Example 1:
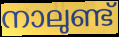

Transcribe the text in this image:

നാലുണ്ട്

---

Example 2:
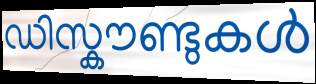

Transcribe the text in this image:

ഡിസ്കൗണ്ടുകൾ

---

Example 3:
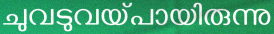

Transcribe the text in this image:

ചുവടുവയ്പായിരുന്നു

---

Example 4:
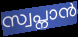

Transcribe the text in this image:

സ്വപ്നാൻ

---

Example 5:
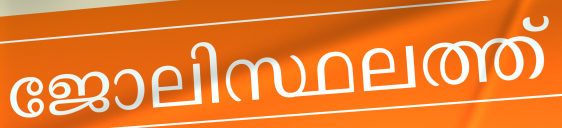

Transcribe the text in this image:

ജോലിസ്ഥലത്ത്